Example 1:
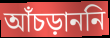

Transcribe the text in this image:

আঁচড়াননি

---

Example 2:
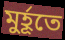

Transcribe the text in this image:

মুর্হূতে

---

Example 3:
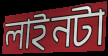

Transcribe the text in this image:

লাইনটা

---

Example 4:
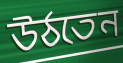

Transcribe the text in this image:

উঠতেন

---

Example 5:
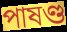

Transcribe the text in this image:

পাষণ্ড